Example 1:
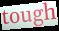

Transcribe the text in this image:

tough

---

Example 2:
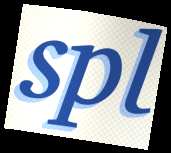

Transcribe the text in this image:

spl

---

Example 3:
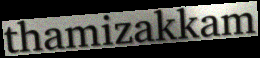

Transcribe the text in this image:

thamizakkam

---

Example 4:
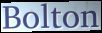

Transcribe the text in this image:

Bolton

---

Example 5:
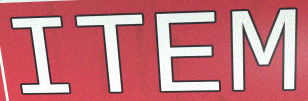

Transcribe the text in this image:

ITEM